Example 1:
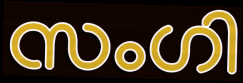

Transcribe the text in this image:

സംഗി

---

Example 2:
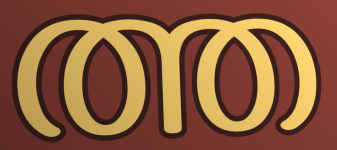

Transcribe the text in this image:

ത്ത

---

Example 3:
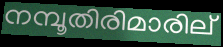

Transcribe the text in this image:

നമ്പൂതിരിമാരില്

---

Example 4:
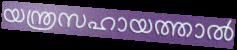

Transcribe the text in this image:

യന്ത്രസഹായത്താൽ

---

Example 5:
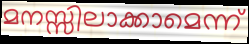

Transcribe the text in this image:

മനസ്സിലാക്കാമെന്ന്